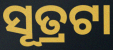
ସୂତ୍ରଟା